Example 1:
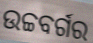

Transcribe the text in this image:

ଉଚ୍ଚବର୍ଗର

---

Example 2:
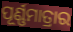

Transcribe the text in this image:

ପୂର୍ଣ୍ଣମାତ୍ରାର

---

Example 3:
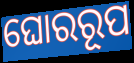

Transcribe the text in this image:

ଘୋରରୂପ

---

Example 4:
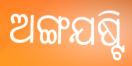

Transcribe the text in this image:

ଅଙ୍ଗଯଷ୍ଟି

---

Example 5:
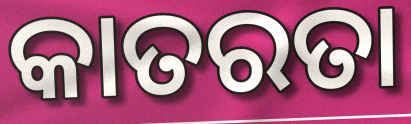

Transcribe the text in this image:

କାତରତା